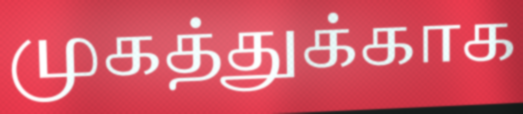
முகத்துக்காக